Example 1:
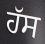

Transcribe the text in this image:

ਹੱਸ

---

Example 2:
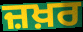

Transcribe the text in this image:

ਜ਼ਖ਼ਰ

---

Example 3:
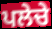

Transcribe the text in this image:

ਪਲੇਚੇ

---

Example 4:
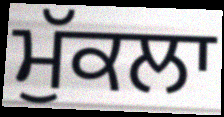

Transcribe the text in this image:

ਮੁੱਕਲਾ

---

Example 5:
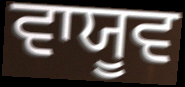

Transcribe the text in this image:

ਵਾਯੂਵ